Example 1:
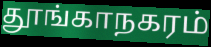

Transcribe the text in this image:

தூங்காநகரம்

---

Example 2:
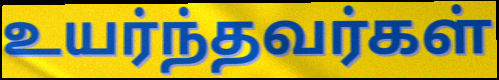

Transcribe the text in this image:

உயர்ந்தவர்கள்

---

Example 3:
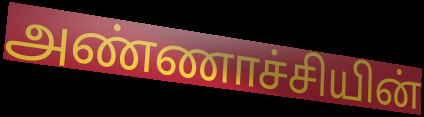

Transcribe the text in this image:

அண்ணாச்சியின்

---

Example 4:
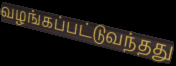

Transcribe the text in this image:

வழங்கப்பட்டுவந்தது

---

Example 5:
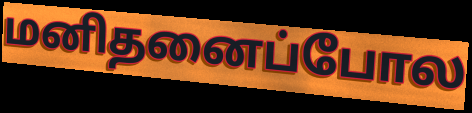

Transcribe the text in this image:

மனிதனைப்போல